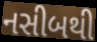
નસીબથી